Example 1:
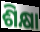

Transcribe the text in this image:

ଶିକ୍ଷା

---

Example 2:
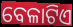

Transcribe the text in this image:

ବେଳାଟିଏ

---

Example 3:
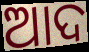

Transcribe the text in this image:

ଆଦ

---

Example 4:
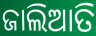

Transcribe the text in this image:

ଜାଲିଆତି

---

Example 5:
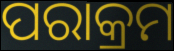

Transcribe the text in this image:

ପରାକ୍ରମ